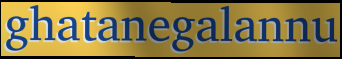
ghatanegalannu